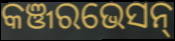
କଞ୍ଜରଭେସନ୍